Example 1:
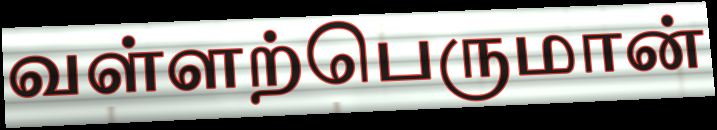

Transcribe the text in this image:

வள்ளற்பெருமான்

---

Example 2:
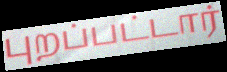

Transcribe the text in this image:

புறப்பட்டார்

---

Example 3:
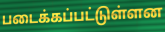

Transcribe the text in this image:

படைக்கப்பட்டுள்ளன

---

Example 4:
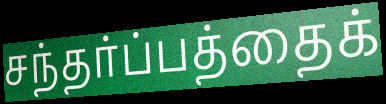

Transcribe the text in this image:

சந்தர்ப்பத்தைக்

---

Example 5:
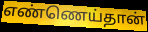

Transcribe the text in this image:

எண்ணெய்தான்